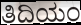
ತಿದಿಯಂ